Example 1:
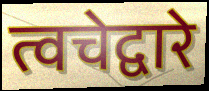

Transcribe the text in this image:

त्वचेद्वारे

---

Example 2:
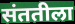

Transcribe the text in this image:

संततीला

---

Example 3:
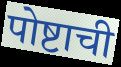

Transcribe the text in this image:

पोष्टाची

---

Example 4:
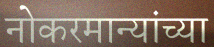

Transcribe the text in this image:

नोकरमान्यांच्या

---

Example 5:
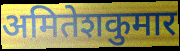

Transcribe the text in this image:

अमितेशकुमार